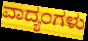
ವಾದ್ಯಂಗಳು